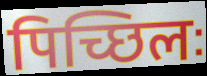
पिच्छिलः